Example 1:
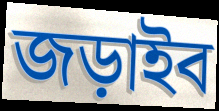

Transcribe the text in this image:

জড়াইব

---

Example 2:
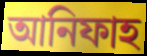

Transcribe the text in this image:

আনিফাহ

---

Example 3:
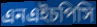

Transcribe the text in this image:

এনএইচপিসি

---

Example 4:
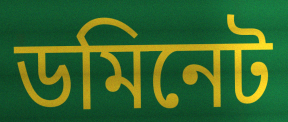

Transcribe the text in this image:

ডমিনেট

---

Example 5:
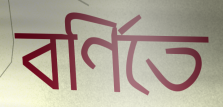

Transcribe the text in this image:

বর্ণিতে